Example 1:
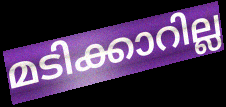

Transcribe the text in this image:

മടിക്കാറില്ല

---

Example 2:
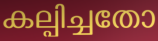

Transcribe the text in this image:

കല്പിച്ചതോ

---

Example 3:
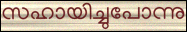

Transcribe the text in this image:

സഹായിച്ചുപോന്നു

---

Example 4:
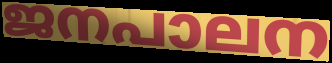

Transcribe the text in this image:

ജനപാലന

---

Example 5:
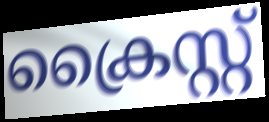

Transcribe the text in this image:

ക്രൈസ്റ്റ്